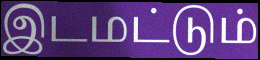
இடமட்டும்